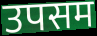
उपसम